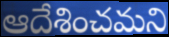
ఆదేశించమని